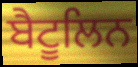
ਬੈਟੂਲਿਨ